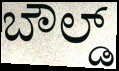
ಬೌಲ್ಡ್